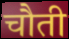
चौती